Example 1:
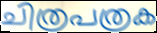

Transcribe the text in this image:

ചിത്രപത്രക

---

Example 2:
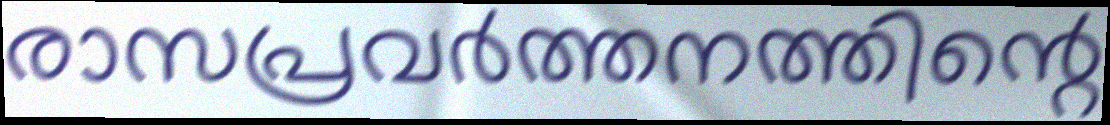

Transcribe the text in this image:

രാസപ്രവർത്തനത്തിന്റെ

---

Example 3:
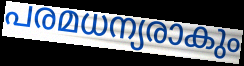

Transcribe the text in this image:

പരമധന്യരാകും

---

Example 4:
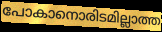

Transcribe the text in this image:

പോകാനൊരിടമില്ലാത്ത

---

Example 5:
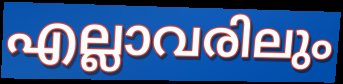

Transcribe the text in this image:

എല്ലാവരിലും